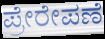
ಪ್ರೇರೇಪಣೆ